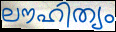
ലൗഹിത്യം